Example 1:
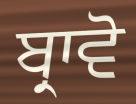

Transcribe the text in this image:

ਬ੍ਰਾਵੋ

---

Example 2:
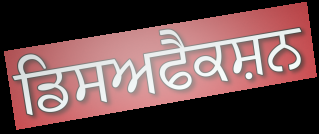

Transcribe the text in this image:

ਡਿਸਅਫੈਕਸ਼ਨ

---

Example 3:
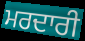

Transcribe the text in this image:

ਮਰਦਾਰੀ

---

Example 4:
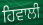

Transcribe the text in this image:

ਹਿਵਾਲੀ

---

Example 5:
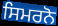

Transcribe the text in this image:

ਸਿਮਰਨੋ